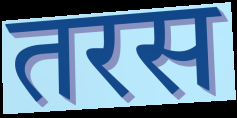
तरस